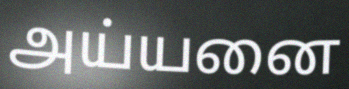
அய்யனை